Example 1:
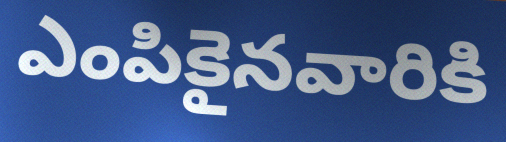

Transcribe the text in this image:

ఎంపికైనవారికి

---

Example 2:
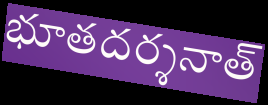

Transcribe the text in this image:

భూతదర్శనాత్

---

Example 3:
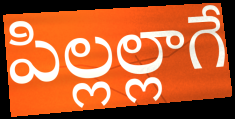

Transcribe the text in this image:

పిల్లల్లాగే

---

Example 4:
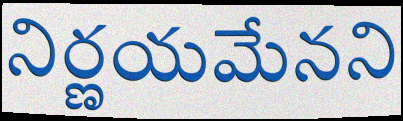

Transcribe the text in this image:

నిర్ణయమేనని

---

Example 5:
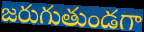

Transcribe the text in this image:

జరుగుతుండగా